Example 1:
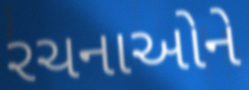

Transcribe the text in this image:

રચનાઓને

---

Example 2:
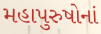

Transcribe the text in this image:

મહાપુરુષોનાં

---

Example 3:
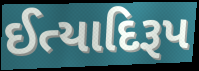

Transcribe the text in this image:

ઈત્યાદિરૂપ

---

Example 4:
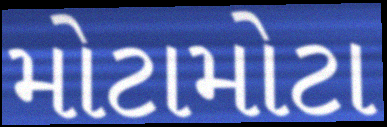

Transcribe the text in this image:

મોટામોટા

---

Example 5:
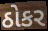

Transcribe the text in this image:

ઠોકર